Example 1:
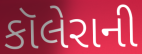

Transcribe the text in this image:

કૉલેરાની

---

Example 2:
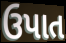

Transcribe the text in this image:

ઉપાત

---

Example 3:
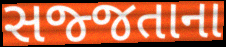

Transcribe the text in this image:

સજ્જતાના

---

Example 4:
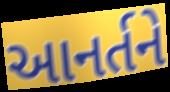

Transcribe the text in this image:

આનર્તને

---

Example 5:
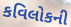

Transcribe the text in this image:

કવિલોકની